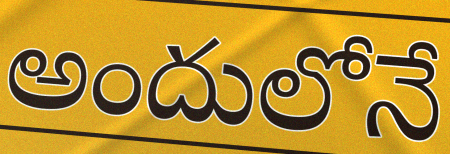
అందులోనే